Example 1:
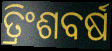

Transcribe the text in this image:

ତ୍ରିଂଶବର୍ଷ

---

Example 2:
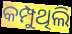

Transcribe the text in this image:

କମ୍ପୁଥିଲି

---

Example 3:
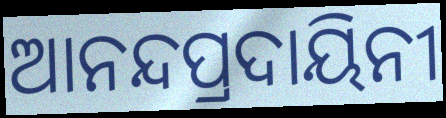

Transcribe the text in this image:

ଆନନ୍ଦପ୍ରଦାୟିନୀ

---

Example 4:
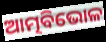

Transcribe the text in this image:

ଆତ୍ମବିଭୋଳ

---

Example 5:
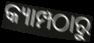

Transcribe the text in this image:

କ୍ୟାମ୍ପଠାରୁ